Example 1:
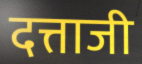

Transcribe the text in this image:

दत्ताजी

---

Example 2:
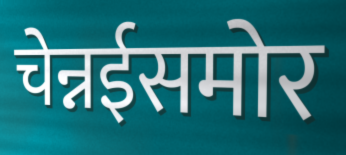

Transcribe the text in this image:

चेन्नईसमोर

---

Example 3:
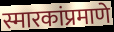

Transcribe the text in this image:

स्मारकांप्रमाणे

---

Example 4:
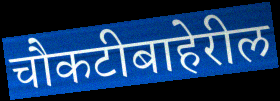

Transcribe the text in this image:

चौकटीबाहेरील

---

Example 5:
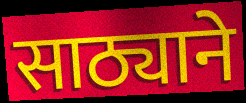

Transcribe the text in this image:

साठ्याने